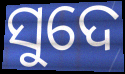
ସୁଦେ